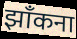
झाँकना